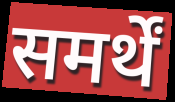
समर्थें